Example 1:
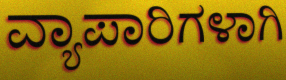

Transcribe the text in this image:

ವ್ಯಾಪಾರಿಗಳಾಗಿ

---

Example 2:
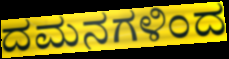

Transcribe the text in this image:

ದಮನಗಳಿಂದ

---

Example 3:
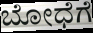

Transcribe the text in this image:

ಬೋಧೆಗೆ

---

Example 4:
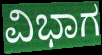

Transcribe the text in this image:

ವಿಭಾಗ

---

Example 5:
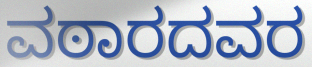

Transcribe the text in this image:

ವಠಾರದವರ